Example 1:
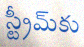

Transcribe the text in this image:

స్ట్రీమ్‌కు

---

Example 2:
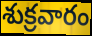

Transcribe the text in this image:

శుక్రవారం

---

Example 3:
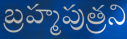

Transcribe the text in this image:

బ్రహ్మపుత్రని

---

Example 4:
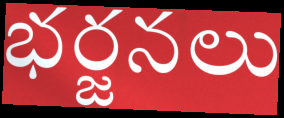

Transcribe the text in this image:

భర్జనలు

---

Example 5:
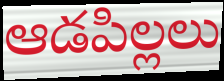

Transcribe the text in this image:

ఆడపిల్లలు